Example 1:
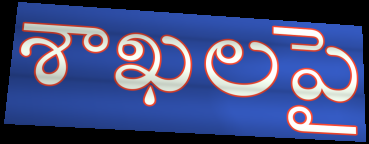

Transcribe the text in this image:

శాఖలపై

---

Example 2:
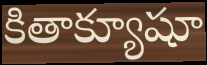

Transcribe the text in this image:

కితాక్యూషూ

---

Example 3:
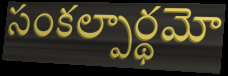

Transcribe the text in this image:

సంకల్పార్థమో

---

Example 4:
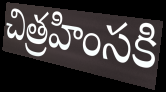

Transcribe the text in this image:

చిత్రహింసకి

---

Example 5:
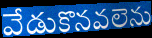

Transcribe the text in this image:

వేడుకొనవలెను